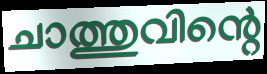
ചാത്തുവിന്റെ